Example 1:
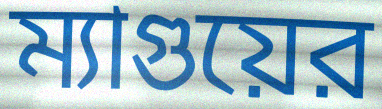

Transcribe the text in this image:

ম্যাগুয়ের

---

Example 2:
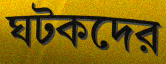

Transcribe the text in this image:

ঘটকদের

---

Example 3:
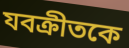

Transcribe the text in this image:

যবক্রীতকে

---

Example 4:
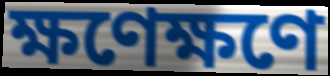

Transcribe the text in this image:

ক্ষণেক্ষণে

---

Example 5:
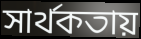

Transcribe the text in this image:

সার্থকতায়